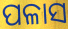
ପଳାସ